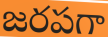
జరపగా